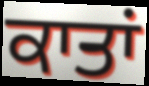
ਕਾਤਾਂ